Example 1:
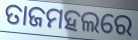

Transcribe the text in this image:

ତାଜମହଲରେ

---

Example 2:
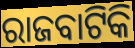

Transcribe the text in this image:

ରାଜବାଟିକି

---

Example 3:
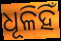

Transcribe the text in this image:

ଧୂଳିହିଁ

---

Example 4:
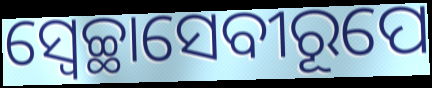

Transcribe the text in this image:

ସ୍ଵେଚ୍ଛାସେବୀରୂପେ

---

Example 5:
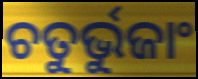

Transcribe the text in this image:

ଚତୁର୍ଭୁଜାଂ